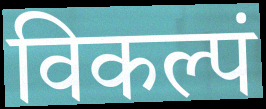
विकल्पं